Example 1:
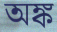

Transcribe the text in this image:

অঙ্ক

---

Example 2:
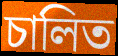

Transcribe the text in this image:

চালিত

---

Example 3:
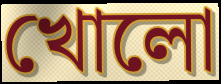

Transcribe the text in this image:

খোলো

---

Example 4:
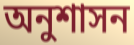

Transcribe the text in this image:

অনুশাসন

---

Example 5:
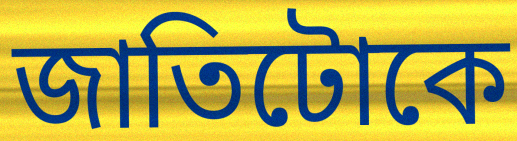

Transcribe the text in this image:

জাতিটোকে